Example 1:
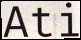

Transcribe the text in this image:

Ati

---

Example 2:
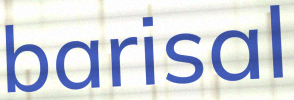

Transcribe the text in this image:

barisal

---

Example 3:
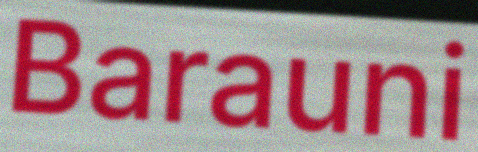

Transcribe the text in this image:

Barauni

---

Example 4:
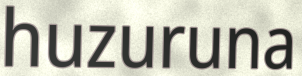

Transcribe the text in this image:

huzuruna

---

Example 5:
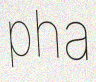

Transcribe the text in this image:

pha